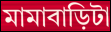
মামাবাড়িটা